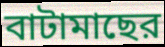
বাটামাছের